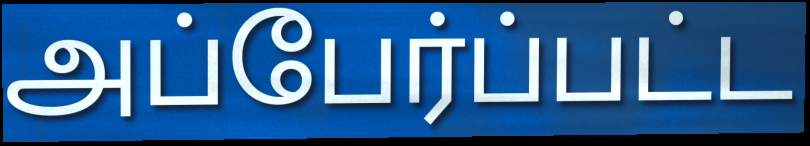
அப்பேர்ப்பட்ட